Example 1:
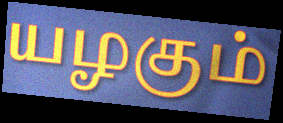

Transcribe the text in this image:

யழகும்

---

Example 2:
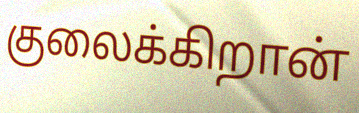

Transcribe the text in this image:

குலைக்கிறான்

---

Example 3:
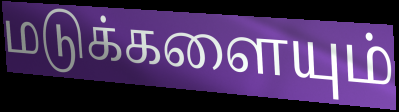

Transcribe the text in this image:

மடுக்களையும்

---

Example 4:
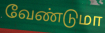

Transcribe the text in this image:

வேண்டுமா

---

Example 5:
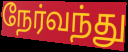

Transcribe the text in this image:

நேர்வந்து